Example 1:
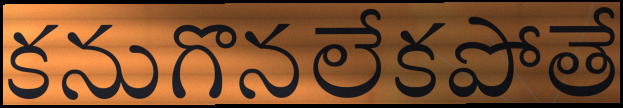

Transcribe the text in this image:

కనుగొనలేకపోతే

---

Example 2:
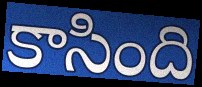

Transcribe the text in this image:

కాసింది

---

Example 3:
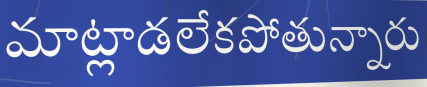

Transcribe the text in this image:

మాట్లాడలేకపోతున్నారు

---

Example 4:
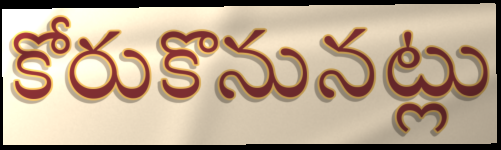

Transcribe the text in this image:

కోరుకొనునట్లు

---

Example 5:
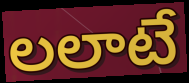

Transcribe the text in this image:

లలాటే